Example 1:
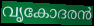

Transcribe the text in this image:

വൃകോദരൻ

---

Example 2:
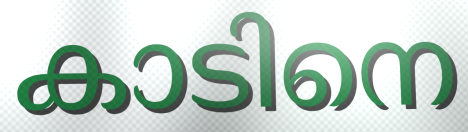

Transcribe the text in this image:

കാടിനെ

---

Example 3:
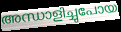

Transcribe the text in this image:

അന്ധാളിച്ചുപോയ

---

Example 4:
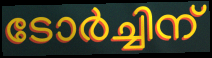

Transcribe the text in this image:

ടോർച്ചിന്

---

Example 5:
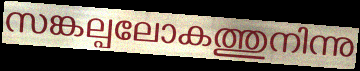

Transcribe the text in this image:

സങ്കല്പലോകത്തുനിന്നു